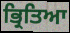
ਭ੍ਰਿਤਿਆ